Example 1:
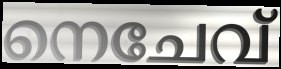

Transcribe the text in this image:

നെചേവ്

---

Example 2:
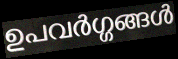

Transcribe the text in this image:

ഉപവർഗ്ഗങ്ങൾ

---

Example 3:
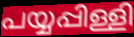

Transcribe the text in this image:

പയ്യപ്പിള്ളി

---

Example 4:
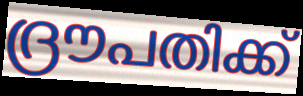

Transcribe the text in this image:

ദ്രൗപതിക്ക്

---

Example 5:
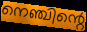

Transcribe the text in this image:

നെഞ്ചിന്റെ